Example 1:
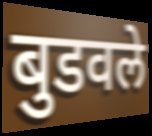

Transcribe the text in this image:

बुडवले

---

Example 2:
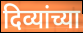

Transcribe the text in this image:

दिव्यांच्या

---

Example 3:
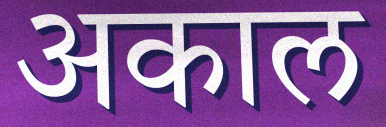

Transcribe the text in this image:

अकाल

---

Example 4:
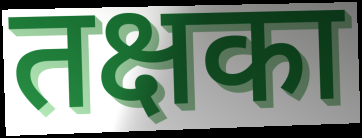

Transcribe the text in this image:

तक्षका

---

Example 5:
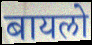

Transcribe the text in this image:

बायलो